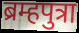
ब्रम्हपुत्रा